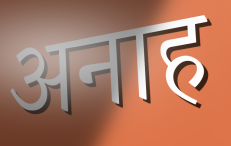
अनाह